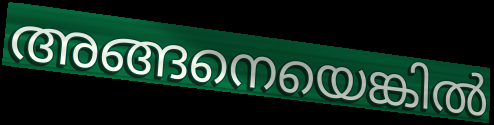
അങ്ങനെയെങ്കിൽ